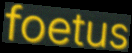
foetus